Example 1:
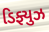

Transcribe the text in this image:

ડિફ્યુઝ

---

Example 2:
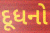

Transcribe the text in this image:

દૂધનો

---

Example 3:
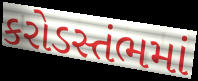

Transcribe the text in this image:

કરોડસ્તંભમાં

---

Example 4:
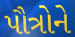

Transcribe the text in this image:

પૌત્રોને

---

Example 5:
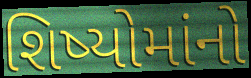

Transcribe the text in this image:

શિષ્યોમાંનો